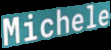
Michele